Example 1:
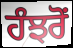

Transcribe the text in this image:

ਹੰਝਰੋਂ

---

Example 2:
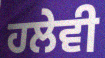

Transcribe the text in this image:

ਹਲੇਵੀ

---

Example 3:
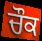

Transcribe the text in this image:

ਚੌਕ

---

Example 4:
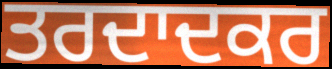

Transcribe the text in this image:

ਤਰਦਾਦਕਰ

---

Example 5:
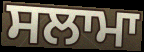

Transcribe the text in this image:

ਸਲਾਮਾ